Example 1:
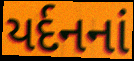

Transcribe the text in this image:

યર્દનનાં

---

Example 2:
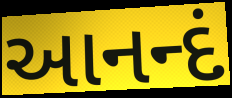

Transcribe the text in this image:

આનન્દં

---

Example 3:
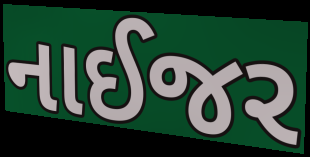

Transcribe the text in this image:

નાઈજર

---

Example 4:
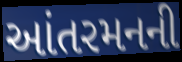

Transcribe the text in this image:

આંતરમનની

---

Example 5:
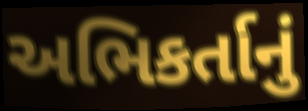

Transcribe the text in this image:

અભિકર્તાનું